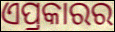
ଏପ୍ରକାରର